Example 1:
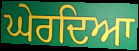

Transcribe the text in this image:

ਘੇਰਦਿਆ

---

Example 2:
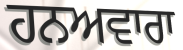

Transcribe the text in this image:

ਹਨਅਵਾਰਾ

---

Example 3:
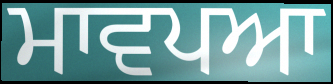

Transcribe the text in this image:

ਮਾਵਪਆ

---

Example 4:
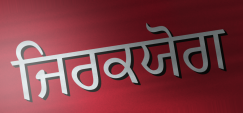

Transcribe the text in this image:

ਜਿਰਕਯੋਗ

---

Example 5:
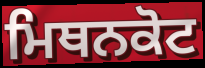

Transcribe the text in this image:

ਮਿਥਨਕੋਟ